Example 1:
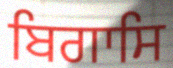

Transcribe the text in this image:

ਬਿਗਾਸਿ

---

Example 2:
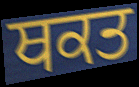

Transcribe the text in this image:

ਥਕਤ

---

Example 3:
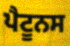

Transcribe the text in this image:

ਪੈਟੂਨਸ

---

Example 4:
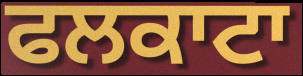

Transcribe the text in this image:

ਫਲਕਾਟਾ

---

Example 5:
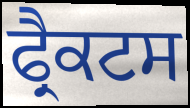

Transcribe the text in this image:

ਫ੍ਰੈਕਟਸ